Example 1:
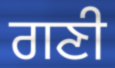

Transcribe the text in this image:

ਗਣੀ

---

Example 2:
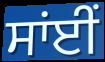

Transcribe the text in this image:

ਸਾਂਈਂ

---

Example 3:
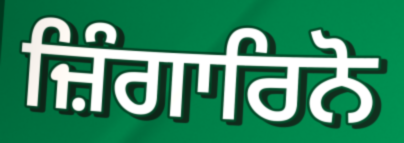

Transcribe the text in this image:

ਜ਼ਿੰਗਾਰਿਨੋ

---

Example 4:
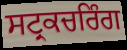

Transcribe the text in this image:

ਸਟ੍ਰਕਚਰਿੰਗ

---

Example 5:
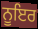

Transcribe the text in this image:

ਨੂਇਰ